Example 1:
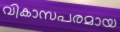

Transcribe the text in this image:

വികാസപരമായ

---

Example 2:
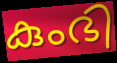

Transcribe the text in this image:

കുംഭി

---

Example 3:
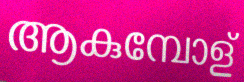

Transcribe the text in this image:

ആകുമ്പോള്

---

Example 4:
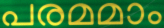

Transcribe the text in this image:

പരമമാം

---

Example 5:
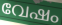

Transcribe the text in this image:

വേഷം